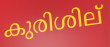
കുരിശില്